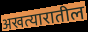
अखत्यारातील